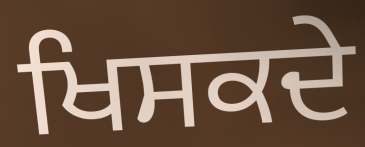
ਖਿਸਕਦੇ